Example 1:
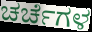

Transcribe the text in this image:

ಚರ್ಚೆಗಳ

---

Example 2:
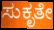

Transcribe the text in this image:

ಸುಕೃತೇ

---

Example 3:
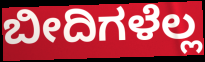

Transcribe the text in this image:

ಬೀದಿಗಳೆಲ್ಲ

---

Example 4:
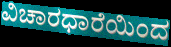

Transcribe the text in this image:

ವಿಚಾರಧಾರೆಯಿಂದ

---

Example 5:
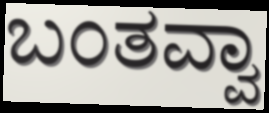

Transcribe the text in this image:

ಬಂತವ್ವಾ